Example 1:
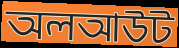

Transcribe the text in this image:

অলআউট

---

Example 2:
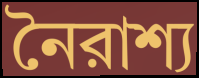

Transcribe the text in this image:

নৈরাশ্য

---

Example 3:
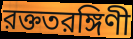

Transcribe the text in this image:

রক্ততরঙ্গিণী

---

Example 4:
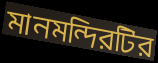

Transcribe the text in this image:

মানমন্দিরটির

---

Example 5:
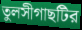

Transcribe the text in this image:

তুলসীগাছটির